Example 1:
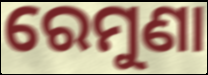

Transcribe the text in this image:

ରେମୁଣା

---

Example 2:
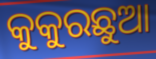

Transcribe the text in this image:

କୁକୁରଛୁଆ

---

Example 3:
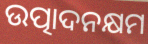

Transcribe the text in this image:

ଉତ୍ପାଦନକ୍ଷମ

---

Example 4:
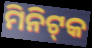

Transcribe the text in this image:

ମିନିଟ୍‌କ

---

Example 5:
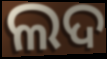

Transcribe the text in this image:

ଲଦ